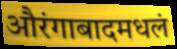
औरंगाबादमधलं